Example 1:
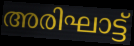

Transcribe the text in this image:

അരിഘാട്ട്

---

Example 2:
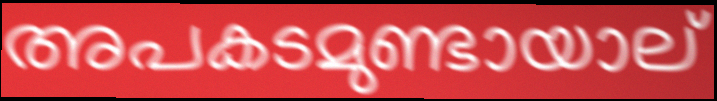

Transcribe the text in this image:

അപകടമുണ്ടായാല്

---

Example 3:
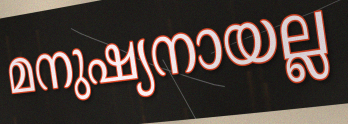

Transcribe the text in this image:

മനുഷ്യനായല്ല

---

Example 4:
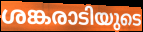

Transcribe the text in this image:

ശങ്കരാടിയുടെ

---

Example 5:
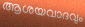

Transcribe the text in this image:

ആശയവാദവും